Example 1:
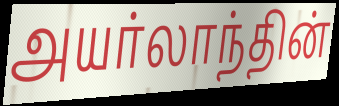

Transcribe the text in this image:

அயர்லாந்தின்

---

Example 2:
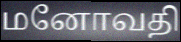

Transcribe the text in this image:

மனோவதி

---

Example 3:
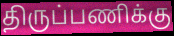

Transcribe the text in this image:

திருப்பணிக்கு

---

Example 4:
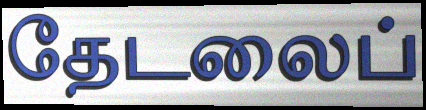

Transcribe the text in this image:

தேடலைப்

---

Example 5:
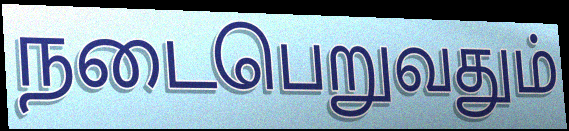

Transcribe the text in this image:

நடைபெறுவதும்